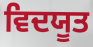
ਵਿਦਯੂਤ